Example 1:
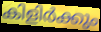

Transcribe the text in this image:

കിളിർക്കും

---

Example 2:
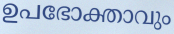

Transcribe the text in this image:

ഉപഭോക്താവും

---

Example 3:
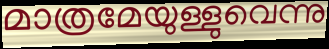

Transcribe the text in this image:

മാത്രമേയുള്ളുവെന്നു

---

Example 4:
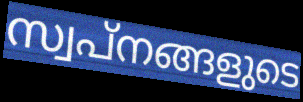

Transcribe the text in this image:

സ്വപ്നങ്ങളുടെ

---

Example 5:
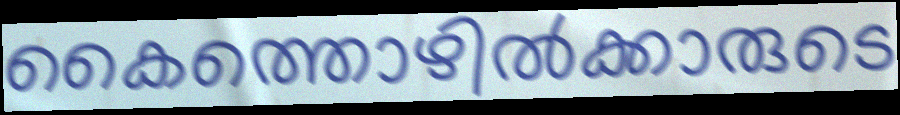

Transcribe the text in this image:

കൈത്തൊഴിൽക്കാരുടെ